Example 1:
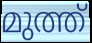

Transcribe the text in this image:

മുത്ത്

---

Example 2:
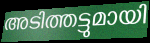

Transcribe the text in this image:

അടിത്തട്ടുമായി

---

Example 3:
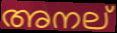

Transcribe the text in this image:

അനല്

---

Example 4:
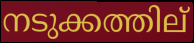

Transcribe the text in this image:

നടുക്കത്തില്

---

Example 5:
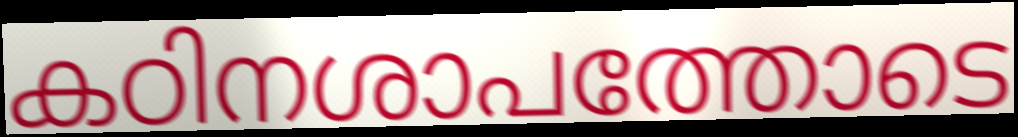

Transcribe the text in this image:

കഠിനശാപത്തോടെ